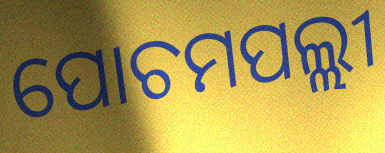
ପୋଚମପଲ୍ଲୀ